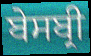
ਬੇਸਬ੍ਰੀ